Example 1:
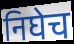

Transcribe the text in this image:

निघेच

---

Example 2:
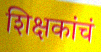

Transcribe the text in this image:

शिक्षकांचं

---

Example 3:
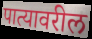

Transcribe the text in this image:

पात्यावरील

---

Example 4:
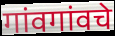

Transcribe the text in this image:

गांवगांवचे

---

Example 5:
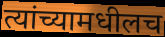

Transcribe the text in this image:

त्यांच्यामधीलच